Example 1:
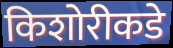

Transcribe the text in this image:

किशोरीकडे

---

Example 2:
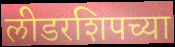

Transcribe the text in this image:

लीडरशिपच्या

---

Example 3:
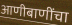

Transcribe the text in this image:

आणीबाणींचा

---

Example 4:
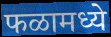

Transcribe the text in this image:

फळामध्ये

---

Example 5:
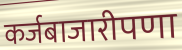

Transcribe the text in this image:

कर्जबाजारीपणा